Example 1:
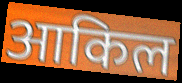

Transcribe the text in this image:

आकिल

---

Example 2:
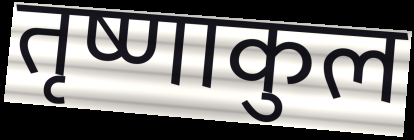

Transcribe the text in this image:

तृष्णाकुल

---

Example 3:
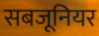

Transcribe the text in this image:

सबजूनियर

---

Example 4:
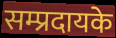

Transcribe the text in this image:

सम्प्रदायके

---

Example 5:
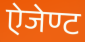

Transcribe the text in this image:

ऐजेण्ट